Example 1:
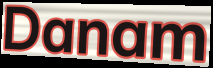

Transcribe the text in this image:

Danam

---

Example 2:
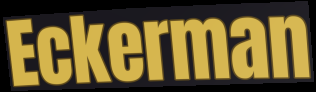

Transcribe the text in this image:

Eckerman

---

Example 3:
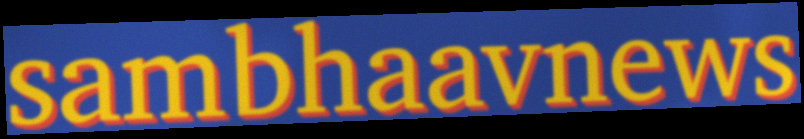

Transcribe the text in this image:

sambhaavnews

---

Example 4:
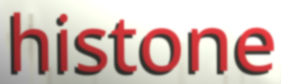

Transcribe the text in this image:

histone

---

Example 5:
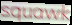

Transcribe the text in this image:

squawk